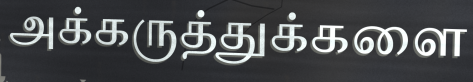
அக்கருத்துக்களை